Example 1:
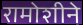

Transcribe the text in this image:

रामोशीने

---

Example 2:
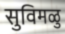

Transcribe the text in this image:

सुविमळु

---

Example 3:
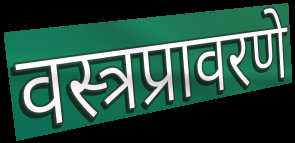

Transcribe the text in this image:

वस्त्रप्रावरणे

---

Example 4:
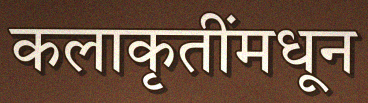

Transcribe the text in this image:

कलाकृतींमधून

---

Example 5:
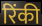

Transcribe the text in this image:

रिंकी